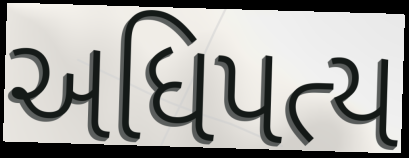
અધિપત્ય